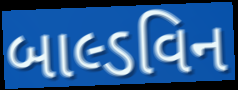
બાલ્ડવિન